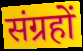
संग्रहों